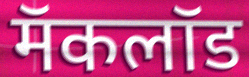
मॅकलॉड